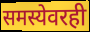
समस्येवरही